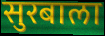
सुरबाला